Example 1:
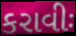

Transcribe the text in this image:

કરાવીઃ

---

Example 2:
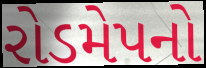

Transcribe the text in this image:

રોડમેપનો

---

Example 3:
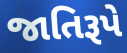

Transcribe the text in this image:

જાતિરૂપે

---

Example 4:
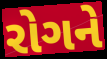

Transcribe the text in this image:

રોગને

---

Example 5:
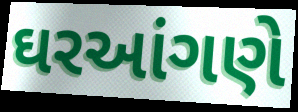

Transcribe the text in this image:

ઘરઆંગણે